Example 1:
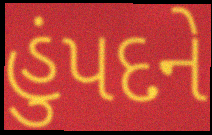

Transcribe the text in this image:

હુંપદને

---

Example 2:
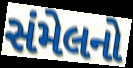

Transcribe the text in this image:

સંમેલનો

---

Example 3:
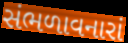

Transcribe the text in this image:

સંભળાવનારાં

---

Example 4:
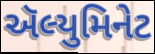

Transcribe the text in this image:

ઍલ્યુમિનેટ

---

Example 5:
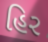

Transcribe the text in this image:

હિર